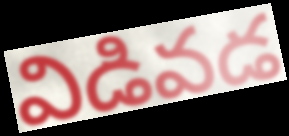
విడివడ